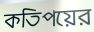
কতিপয়ের